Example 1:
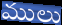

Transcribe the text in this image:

ములు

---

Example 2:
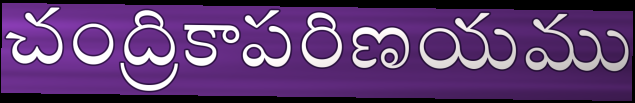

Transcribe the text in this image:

చంద్రికాపరిణయము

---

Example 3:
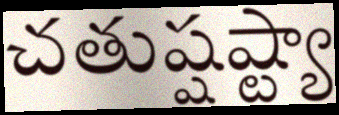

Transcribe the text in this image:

చతుష్షష్ట్యా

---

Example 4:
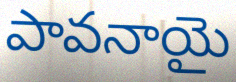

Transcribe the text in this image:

పావనాయై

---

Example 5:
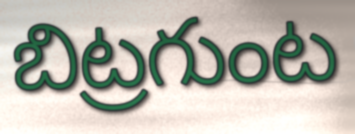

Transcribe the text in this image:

బిట్రగుంట